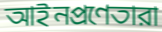
আইনপ্রণেতারা